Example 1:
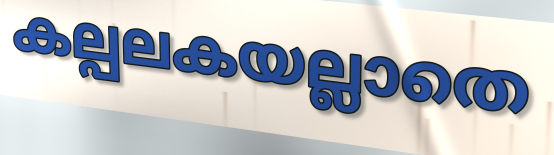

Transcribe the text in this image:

കല്പലകയല്ലാതെ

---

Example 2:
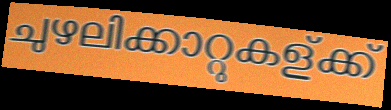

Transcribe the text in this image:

ചുഴലിക്കാറ്റുകള്ക്ക്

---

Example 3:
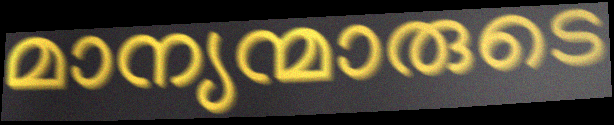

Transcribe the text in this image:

മാന്യന്മാരുടെ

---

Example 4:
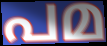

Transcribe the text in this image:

പമ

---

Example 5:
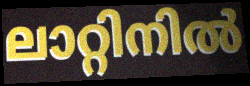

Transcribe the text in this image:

ലാറ്റിനിൽ